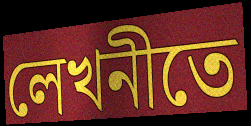
লেখনীতে